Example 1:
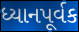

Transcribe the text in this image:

ધ્યાનપૂર્વક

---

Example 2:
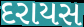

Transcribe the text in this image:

દરાયસ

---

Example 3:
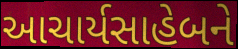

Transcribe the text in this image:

આચાર્યસાહેબને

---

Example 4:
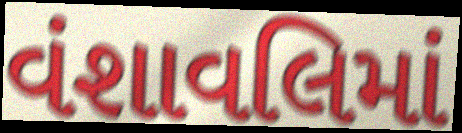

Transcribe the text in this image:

વંશાવલિમાં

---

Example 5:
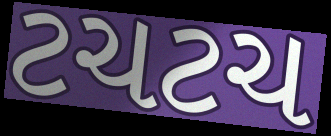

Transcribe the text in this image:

ટચટચ